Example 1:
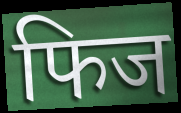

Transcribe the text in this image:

फिज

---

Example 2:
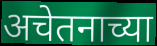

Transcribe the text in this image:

अचेतनाच्या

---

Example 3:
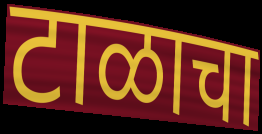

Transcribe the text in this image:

टाळाचा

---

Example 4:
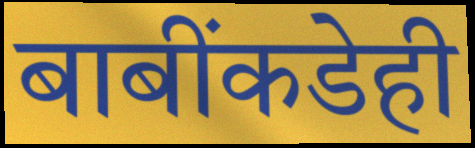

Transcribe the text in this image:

बाबींकडेही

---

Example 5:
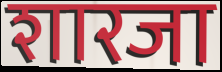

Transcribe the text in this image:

शारजा